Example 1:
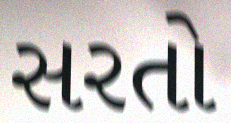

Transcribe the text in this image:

સરતો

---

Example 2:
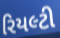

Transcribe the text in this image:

રિયલ્ટી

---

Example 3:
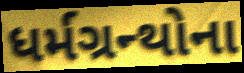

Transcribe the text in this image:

ધર્મગ્રન્થોના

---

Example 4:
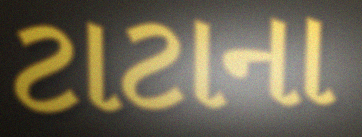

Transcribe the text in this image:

ટાટાના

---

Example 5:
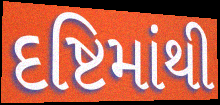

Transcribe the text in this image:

દષ્ટિમાંથી